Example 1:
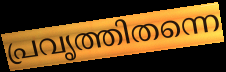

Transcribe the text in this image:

പ്രവൃത്തിതന്നെ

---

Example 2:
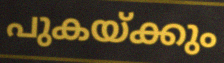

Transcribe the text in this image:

പുകയ്ക്കും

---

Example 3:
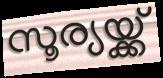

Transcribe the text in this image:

സൂര്യയ്ക്ക്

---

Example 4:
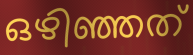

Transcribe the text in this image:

ഒഴിഞ്ഞത്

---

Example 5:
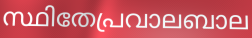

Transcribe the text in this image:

സ്ഥിതേപ്രവാലബാല